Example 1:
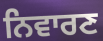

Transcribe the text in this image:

ਨਿਵਾਰਣ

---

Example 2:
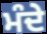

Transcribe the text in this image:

ਮੰਦੇ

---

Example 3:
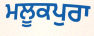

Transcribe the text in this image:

ਮਲੂਕਪੁਰਾ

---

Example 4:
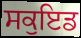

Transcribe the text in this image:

ਸਕੁਇਡ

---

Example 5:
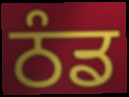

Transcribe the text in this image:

ਠੰਡ